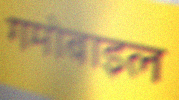
गमोबाइल